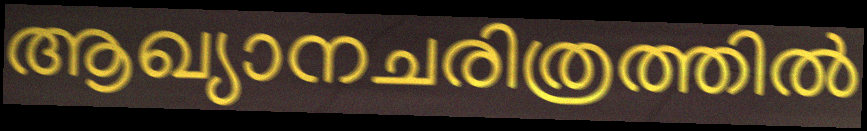
ആഖ്യാനചരിത്രത്തിൽ